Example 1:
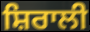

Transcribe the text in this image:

ਸ਼ਿਰਾਲੀ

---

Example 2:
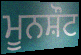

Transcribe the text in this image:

ਮੂਨਸ਼ੌਟ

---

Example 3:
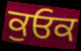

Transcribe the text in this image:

ਕੁਓਕ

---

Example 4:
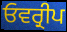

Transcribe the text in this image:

ਓਵਰ੍ਰੀਪ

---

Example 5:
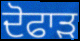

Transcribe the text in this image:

ਦੋਫਾੜ